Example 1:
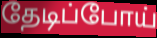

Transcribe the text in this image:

தேடிப்போய்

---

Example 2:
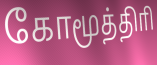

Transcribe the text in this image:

கோமூத்திரி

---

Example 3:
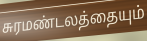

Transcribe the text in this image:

சுரமண்டலத்தையும்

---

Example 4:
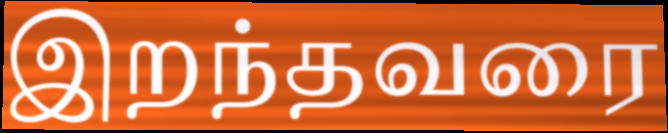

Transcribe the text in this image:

இறந்தவரை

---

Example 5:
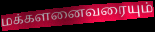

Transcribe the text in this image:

மக்களனைவரையும்